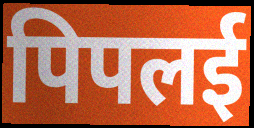
पिपलई